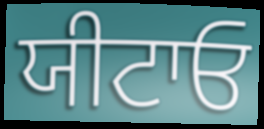
ਯੀਟਾਓ